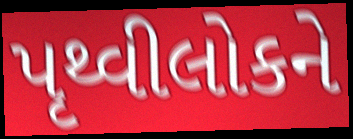
પૃથ્વીલોકને